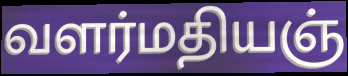
வளர்மதியஞ்